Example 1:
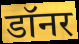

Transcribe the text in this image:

डॉनर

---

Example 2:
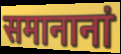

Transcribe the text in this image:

समानानां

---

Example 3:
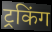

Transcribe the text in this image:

ट्रकिंग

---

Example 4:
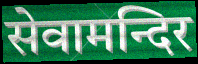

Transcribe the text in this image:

सेवामन्दिर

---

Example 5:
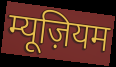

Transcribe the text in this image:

म्यूज़ियम